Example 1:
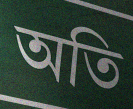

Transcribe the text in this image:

অতি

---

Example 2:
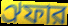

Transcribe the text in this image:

ঐফার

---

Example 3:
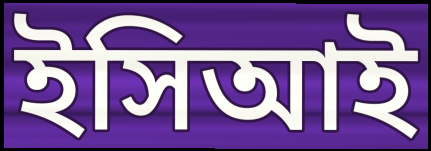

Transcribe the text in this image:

ইসিআই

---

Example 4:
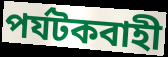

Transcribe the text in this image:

পর্যটকবাহী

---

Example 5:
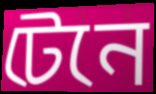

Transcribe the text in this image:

টেনে